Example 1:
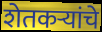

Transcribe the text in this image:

शेतकऱ्यांचे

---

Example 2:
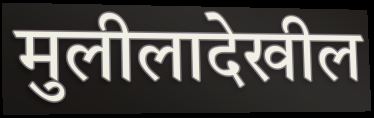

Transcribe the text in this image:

मुलीलादेखील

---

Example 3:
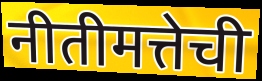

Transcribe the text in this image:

नीतीमत्तेची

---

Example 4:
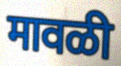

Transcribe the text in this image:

मावळी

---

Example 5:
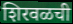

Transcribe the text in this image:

शिरवळची